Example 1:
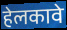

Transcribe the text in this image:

हेलकावे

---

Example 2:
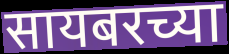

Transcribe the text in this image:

सायबरच्या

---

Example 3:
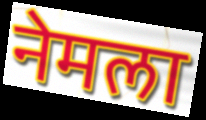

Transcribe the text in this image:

नेमला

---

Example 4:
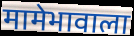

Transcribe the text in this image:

मामेभावाला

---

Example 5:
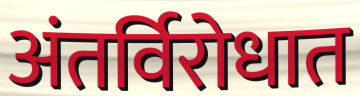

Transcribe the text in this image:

अंतर्विरोधात